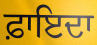
ਫ਼ਾਇਦਾ